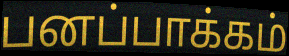
பனப்பாக்கம்